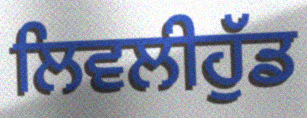
ਲਿਵਲੀਹੁੱਡ